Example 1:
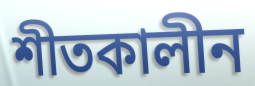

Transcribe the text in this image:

শীতকালীন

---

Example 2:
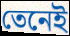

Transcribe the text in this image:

তেনেই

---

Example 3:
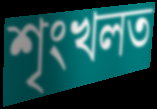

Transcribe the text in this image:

শৃংখলত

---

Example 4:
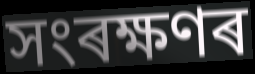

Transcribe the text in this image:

সংৰক্ষণৰ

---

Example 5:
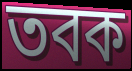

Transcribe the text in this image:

তবক